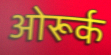
ओरूर्क